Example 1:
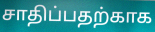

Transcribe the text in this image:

சாதிப்பதற்காக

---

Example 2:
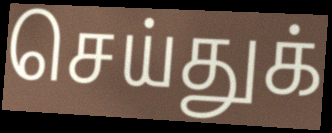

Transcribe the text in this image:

செய்துக்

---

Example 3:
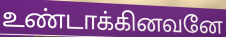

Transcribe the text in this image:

உண்டாக்கினவனே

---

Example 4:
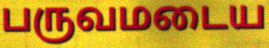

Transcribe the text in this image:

பருவமடைய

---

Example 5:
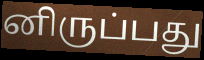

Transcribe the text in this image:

னிருப்பது